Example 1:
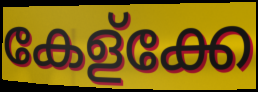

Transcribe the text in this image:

കേള്ക്കേ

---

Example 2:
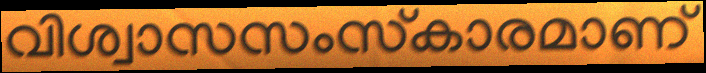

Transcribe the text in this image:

വിശ്വാസസംസ്‌കാരമാണ്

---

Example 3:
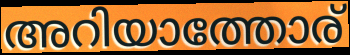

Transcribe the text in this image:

അറിയാത്തോര്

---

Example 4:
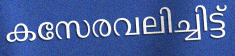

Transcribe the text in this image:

കസേരവലിച്ചിട്ട്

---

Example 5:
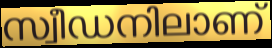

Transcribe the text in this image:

സ്വീഡനിലാണ്